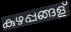
കുഴപ്പങ്ങള്